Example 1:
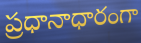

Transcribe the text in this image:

ప్రధానాధారంగా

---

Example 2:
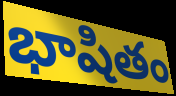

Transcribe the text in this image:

భాషితం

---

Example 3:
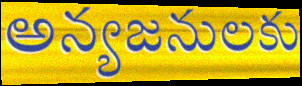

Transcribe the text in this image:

అన్యజనులకు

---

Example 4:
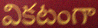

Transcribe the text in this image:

వికటంగా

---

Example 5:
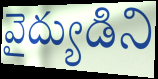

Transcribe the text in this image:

వైద్యుడిని